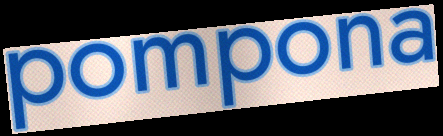
pompona